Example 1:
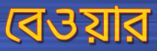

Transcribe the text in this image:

বেওয়ার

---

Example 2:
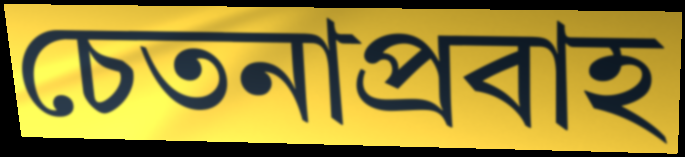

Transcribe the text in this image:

চেতনাপ্রবাহ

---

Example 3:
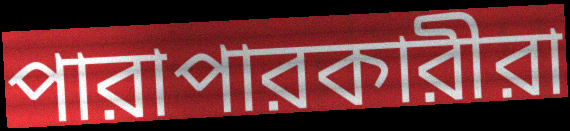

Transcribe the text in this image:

পারাপারকারীরা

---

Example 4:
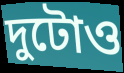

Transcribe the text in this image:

দুটোও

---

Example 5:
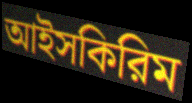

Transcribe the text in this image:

আইসকিরিম